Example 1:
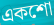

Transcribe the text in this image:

একশো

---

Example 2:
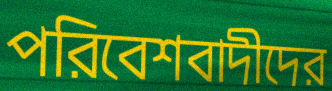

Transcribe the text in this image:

পরিবেশবাদীদের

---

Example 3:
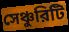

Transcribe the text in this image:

সেঞ্চুরিটি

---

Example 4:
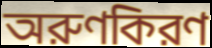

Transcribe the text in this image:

অরুণকিরণ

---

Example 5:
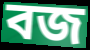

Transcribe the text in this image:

বজ